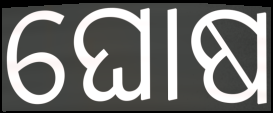
ଘୋଷ